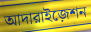
আদারাইজ়েশন